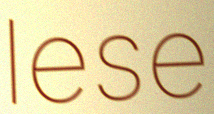
lese